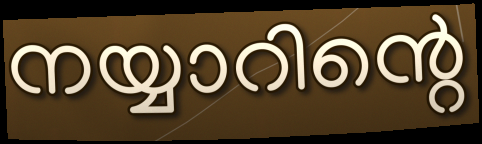
നയ്യാറിന്റെ